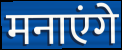
मनाएंगे